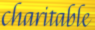
charitable